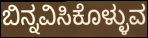
ಬಿನ್ನವಿಸಿಕೊಳ್ಳುವ